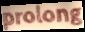
prolong